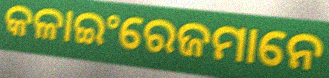
କଳାଇଂରେଜମାନେ